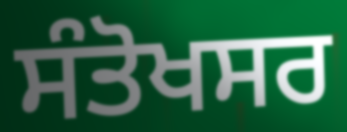
ਸੰਤੋਖਸਰ